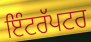
ਇੰਟਰੱਪਟਰ